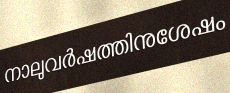
നാലുവർഷത്തിനുശേഷം